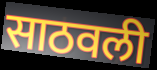
साठवली